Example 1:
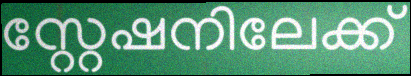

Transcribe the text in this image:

സ്റ്റേഷനിലേക്ക്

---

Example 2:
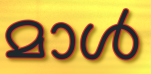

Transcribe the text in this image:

മാൾ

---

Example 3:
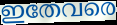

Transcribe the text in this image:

ഇതേവരെ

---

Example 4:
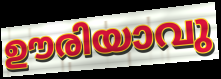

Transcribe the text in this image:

ഊരിയാവു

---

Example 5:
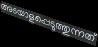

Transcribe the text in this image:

അടയാളപ്പെടുത്തുന്നത്